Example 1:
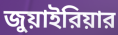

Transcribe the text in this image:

জুয়াইরিয়ার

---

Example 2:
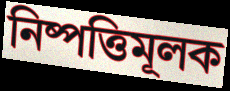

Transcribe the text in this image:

নিষ্পত্তিমূলক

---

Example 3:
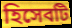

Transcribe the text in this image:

হিসেবটি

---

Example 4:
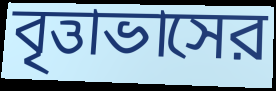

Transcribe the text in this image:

বৃত্তাভাসের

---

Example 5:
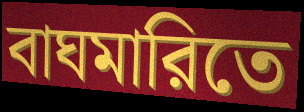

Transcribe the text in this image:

বাঘমারিতে